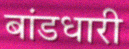
बांडधारी